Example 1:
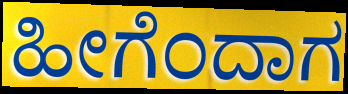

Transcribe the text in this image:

ಹೀಗೆಂದಾಗ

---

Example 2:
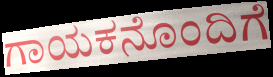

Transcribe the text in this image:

ಗಾಯಕನೊಂದಿಗೆ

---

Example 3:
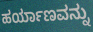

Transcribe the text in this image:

ಹರ್ಯಾಣವನ್ನು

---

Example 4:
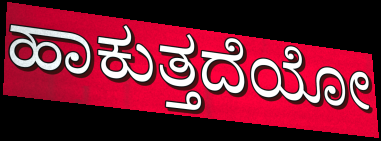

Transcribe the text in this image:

ಹಾಕುತ್ತದೆಯೋ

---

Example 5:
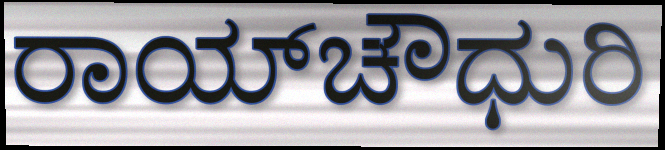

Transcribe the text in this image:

ರಾಯ್‌ಚೌಧುರಿ